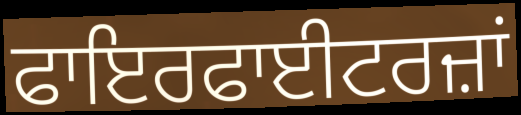
ਫਾਇਰਫਾਈਟਰਜ਼ਾਂ